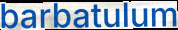
barbatulum